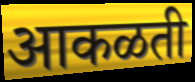
आकळती